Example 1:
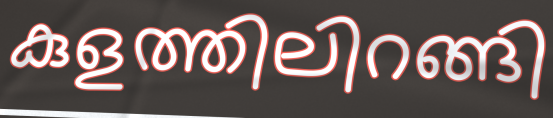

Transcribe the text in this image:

കുളത്തിലിറങ്ങി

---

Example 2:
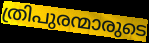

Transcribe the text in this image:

ത്രിപുരന്മാരുടെ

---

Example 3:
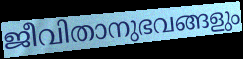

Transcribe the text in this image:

ജീവിതാനുഭവങ്ങളും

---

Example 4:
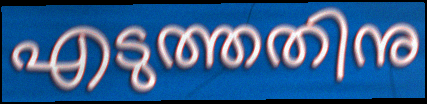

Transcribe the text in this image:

എടുത്തതിനു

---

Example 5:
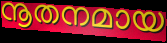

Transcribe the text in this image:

നൂതനമായ